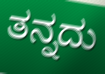
ತನ್ನದು